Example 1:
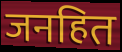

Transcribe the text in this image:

जनहित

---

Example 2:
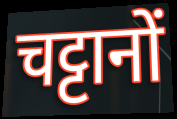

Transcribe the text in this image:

चट्टानों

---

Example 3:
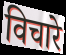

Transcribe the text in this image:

विचारे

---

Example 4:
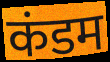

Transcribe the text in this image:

कंडम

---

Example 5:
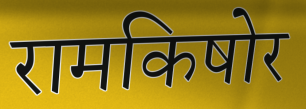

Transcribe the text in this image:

रामकिषोर